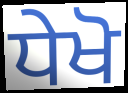
ਧੇਖੋ